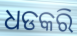
ଧଡକରି